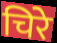
चिरे